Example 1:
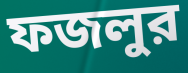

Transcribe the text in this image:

ফজলুর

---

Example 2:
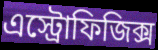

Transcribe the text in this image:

এস্ট্রোফিজিক্স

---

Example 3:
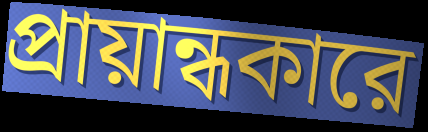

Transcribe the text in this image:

প্রায়ান্ধকারে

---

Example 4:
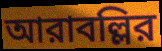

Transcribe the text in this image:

আরাবল্লির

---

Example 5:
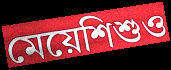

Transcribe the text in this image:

মেয়েশিশুও